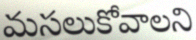
మసలుకోవాలని